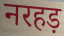
नरहड़